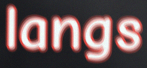
langs